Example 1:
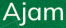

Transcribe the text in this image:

Ajam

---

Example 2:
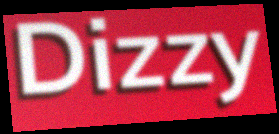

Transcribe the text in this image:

Dizzy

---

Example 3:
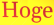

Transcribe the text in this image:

Hoge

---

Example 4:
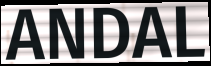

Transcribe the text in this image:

ANDAL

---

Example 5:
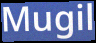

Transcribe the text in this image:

Mugil